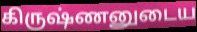
கிருஷ்ணனுடைய